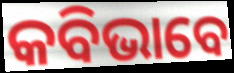
କବିଭାବେ